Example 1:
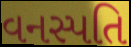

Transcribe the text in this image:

વનસ્પતિ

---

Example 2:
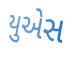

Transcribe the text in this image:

યુએસ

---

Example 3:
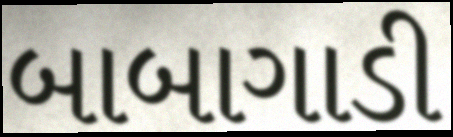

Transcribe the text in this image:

બાબાગાડી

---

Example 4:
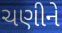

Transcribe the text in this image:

ચણીને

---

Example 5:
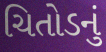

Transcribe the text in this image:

ચિતોડનું